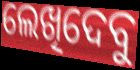
ଲେଖିଦେବୁ